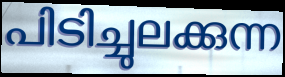
പിടിച്ചുലക്കുന്ന